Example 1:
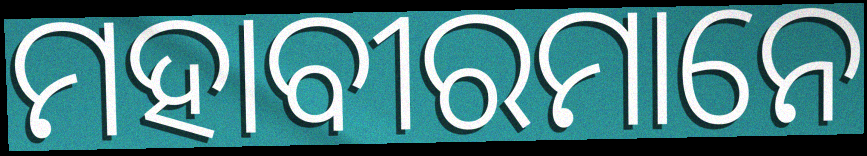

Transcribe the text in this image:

ମହାବୀରମାନେ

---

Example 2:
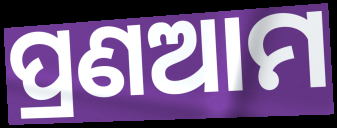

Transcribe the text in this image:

ପ୍ରଣଆମ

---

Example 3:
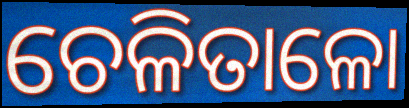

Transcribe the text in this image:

ଚେଳିତାଳୋ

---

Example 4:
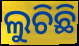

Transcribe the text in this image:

ଲୁଚିଛି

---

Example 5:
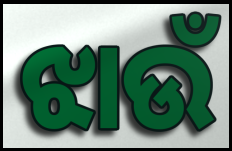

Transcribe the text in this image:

ଝାଉଁ